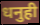
धनुही